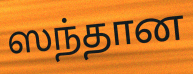
ஸந்தான